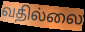
வதில்லை